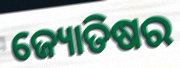
ଜ୍ୟୋତିଷର